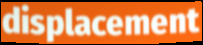
displacement